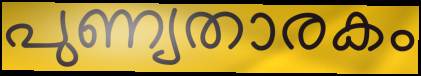
പുണ്യതാരകം